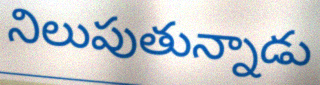
నిలుపుతున్నాడు